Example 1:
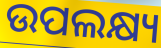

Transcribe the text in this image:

ଉପଲକ୍ଷ୍ୟ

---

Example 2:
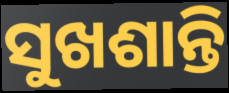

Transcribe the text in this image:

ସୁଖଶାନ୍ତି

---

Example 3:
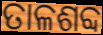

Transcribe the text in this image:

ତାଳଶବ୍ଦ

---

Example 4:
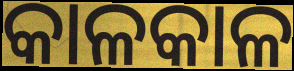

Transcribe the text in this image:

କାଳକାଳ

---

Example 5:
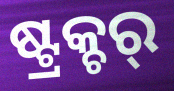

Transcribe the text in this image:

ଷ୍ଟ୍ରକ୍ଚର୍